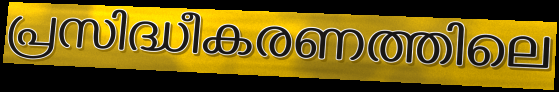
പ്രസിദ്ധീകരണത്തിലെ